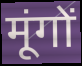
मूंगों